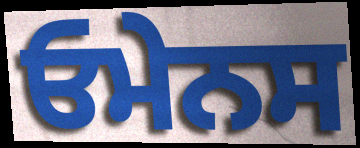
ਓਮੇਨਸ